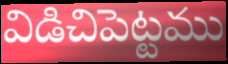
విడిచిపెట్టము